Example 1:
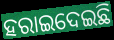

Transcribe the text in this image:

ହରାଇଦେଇଛି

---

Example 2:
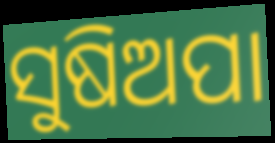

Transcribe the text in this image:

ସୁଷିଅପା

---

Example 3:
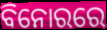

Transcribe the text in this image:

ବିନୋରରେ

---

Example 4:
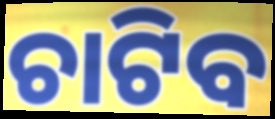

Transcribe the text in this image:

ଚାଟିବ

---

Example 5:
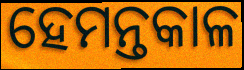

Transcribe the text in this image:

ହେମନ୍ତକାଳ